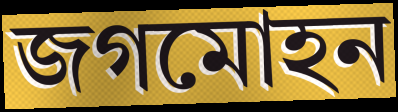
জগমোহন